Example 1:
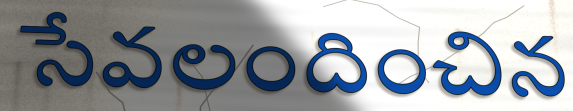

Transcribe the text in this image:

సేవలందించిన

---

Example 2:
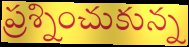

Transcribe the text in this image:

ప్రశ్నించుకున్న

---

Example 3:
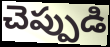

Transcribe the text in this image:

చెప్పుడి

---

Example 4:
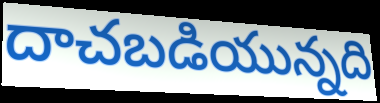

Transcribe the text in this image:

దాచబడియున్నది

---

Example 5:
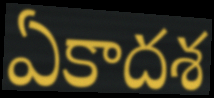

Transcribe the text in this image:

ఏకాదశ